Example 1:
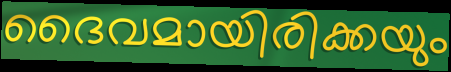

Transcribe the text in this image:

ദൈവമായിരിക്കയും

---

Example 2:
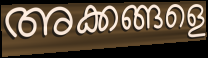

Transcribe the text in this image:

അക്കങ്ങളെ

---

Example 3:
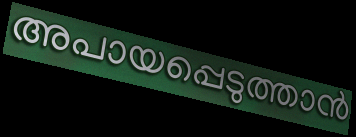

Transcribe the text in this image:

അപായപ്പെടുത്താൻ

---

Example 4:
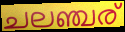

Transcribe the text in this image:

ചലഞ്ചര്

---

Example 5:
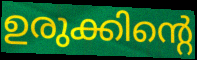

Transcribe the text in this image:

ഉരുക്കിന്റെ